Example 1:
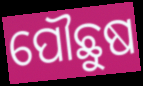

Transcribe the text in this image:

ପୌଛୁଷ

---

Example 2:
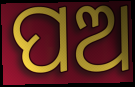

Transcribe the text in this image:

ପଅ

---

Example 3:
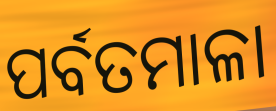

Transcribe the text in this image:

ପର୍ବତମାଳା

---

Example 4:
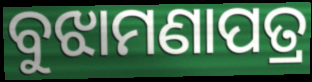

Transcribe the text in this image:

ବୁଝାମଣାପତ୍ର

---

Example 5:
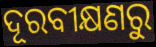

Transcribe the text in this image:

ଦୂରବୀକ୍ଷଣରୁ